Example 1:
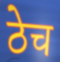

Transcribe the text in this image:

ठेच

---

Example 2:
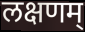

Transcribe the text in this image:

लक्षणम्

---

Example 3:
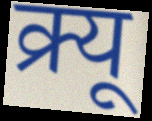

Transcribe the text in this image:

क्र्यू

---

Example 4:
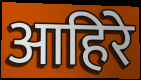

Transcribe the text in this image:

आहिरे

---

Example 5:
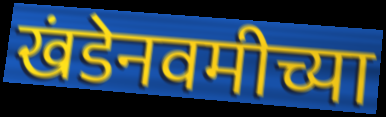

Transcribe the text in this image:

खंडेनवमीच्या